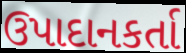
ઉપાદાનકર્તા